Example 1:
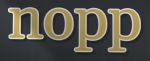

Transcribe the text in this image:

nopp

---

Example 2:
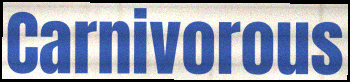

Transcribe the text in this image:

Carnivorous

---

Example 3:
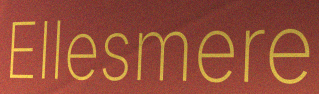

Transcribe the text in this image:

Ellesmere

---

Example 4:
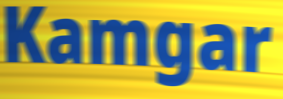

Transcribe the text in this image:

Kamgar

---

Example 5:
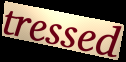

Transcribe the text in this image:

tressed